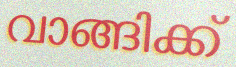
വാങ്ങിക്ക്